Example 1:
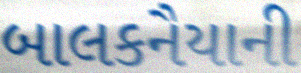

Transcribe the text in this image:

બાલકનૈયાની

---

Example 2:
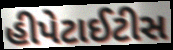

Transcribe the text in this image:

હીપેટાઈટીસ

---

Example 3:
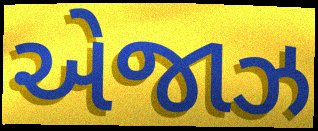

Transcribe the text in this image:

એજાઝ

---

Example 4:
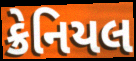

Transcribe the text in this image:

ક્રેનિયલ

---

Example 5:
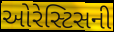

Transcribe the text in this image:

ઓરેસ્ટિસની